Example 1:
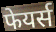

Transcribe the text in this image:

फेयर्स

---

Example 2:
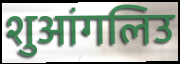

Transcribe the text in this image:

शुआंगलिउ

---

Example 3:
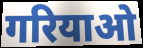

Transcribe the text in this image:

गरियाओ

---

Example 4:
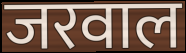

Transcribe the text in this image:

जरवाल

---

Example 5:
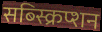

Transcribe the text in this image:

सब्स्क्रिप्शन